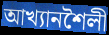
আখ্যানশৈলী